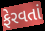
ફેરવતાં